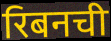
रिबनची